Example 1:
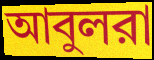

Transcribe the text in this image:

আবুলরা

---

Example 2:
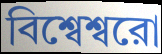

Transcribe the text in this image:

বিশ্বেশ্বরো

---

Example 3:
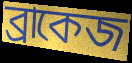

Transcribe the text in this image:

ব্রাকেজ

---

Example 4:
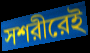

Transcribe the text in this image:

সশরীরেই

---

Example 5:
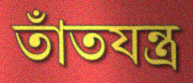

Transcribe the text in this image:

তাঁতযন্ত্র